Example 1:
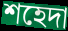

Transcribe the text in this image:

শহেদা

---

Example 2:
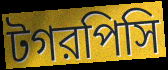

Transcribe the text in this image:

টগরপিসি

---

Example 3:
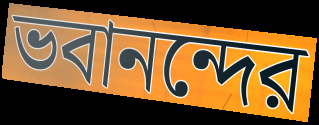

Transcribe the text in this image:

ভবানন্দের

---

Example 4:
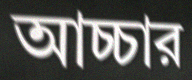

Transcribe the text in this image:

আচ্চার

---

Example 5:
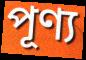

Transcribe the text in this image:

পূণ্য